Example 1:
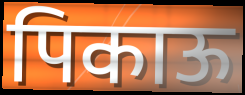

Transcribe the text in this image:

पिकाऊ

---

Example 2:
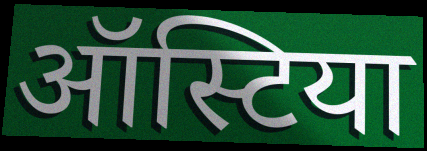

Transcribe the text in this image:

ऑस्टिया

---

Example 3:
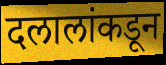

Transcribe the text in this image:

दलालांकडून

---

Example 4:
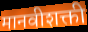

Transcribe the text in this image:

मानवीशक्ती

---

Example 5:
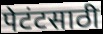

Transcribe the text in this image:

पेटंटसाठी